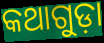
କଥାଗୁଡ଼ା